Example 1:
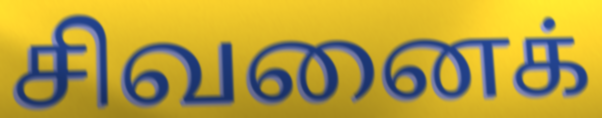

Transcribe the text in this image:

சிவனைக்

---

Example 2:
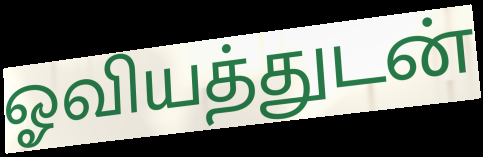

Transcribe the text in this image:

ஓவியத்துடன்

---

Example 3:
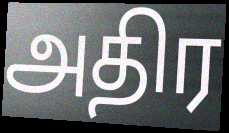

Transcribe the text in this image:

அதிர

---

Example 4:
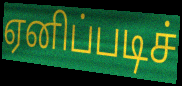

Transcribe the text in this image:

ஏனிப்படிச்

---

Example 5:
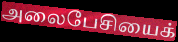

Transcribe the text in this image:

அலைபேசியைக்